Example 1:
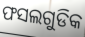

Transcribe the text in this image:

ଫସଲଗୁଡିକ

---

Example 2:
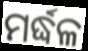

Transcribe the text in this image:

ମର୍ଦ୍ଧଳ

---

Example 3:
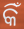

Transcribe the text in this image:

କିଁ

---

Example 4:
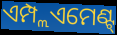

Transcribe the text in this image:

ଏମ୍ପ୍ଲଏମେଣ୍ଟ୍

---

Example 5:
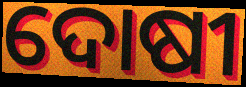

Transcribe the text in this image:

ଦୋଷୀ